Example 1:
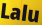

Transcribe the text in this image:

Lalu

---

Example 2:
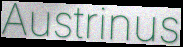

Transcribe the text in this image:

Austrinus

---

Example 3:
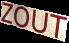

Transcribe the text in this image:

ZOUT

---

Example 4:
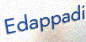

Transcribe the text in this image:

Edappadi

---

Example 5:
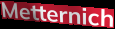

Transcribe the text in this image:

Metternich